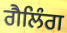
ਗੈਲਿੰਗ